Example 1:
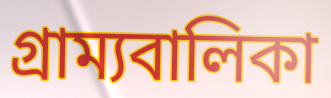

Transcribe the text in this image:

গ্রাম্যবালিকা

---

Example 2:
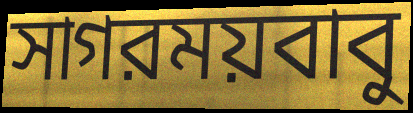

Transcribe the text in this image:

সাগরময়বাবু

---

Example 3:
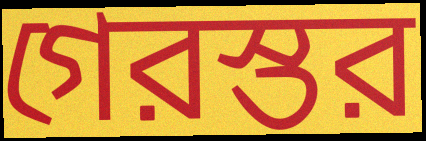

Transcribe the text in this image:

গেরস্তর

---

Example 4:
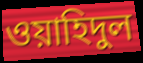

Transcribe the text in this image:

ওয়াহিদুল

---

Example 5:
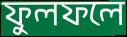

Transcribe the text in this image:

ফুলফলে